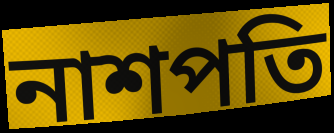
নাশপতি